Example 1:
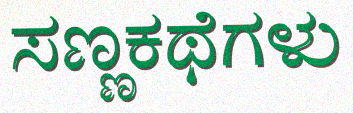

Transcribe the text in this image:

ಸಣ್ಣಕಥೆಗಳು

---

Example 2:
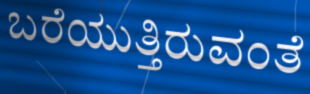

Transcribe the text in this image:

ಬರೆಯುತ್ತಿರುವಂತೆ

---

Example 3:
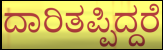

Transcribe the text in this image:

ದಾರಿತಪ್ಪಿದ್ದರೆ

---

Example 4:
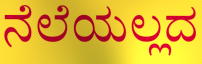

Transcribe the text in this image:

ನೆಲೆಯಲ್ಲದ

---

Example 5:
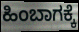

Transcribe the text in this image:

ಹಿಂಬಾಗಕ್ಕೆ